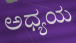
ಅಧ್ಯಯ